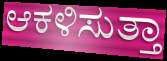
ಆಕಳಿಸುತ್ತಾ